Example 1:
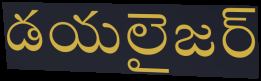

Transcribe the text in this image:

డయలైజర్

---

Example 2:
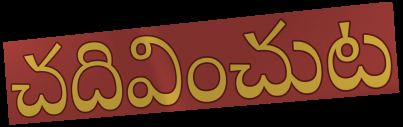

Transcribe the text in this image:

చదివించుట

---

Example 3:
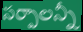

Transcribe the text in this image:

సర్పాలన్నీ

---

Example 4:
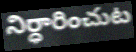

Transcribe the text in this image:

నిర్ధారించుట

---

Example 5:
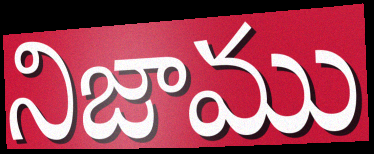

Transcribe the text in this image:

నిజాము